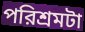
পরিশ্রমটা